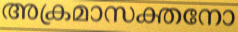
അക്രമാസക്തനോ